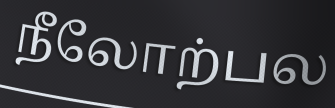
நீலோற்பல